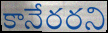
కానేరరని